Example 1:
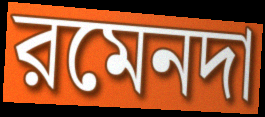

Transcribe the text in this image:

রমেনদা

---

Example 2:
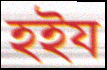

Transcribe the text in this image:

হইয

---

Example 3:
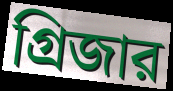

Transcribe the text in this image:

গ্রিজার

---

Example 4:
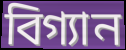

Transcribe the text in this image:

বিগ্যান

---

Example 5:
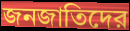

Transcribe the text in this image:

জনজাতিদের